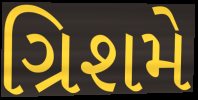
ગ્રિશમે